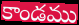
కాండము